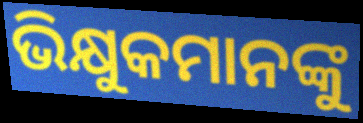
ଭିକ୍ଷୁକମାନଙ୍କୁ